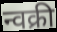
न्वक्री